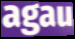
agau